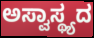
ಅಸ್ವಾಸ್ಥ್ಯದ